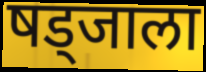
षड्जाला